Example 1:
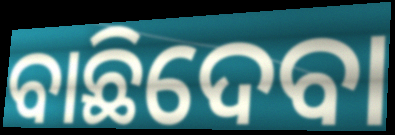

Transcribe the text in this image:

ବାଛିଦେବା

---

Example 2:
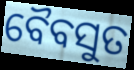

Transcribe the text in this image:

ବୈବସୁତ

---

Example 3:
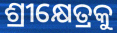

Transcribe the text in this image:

ଶ୍ରୀକ୍ଷେତ୍ରକୁ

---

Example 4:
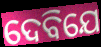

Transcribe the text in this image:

ଦେବିଯେ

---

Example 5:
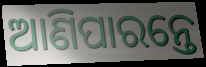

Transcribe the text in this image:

ଆଣିପାରନ୍ତେ